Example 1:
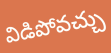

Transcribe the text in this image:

విడిపోవచ్చు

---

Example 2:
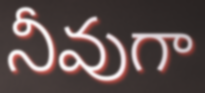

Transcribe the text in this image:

నీవుగా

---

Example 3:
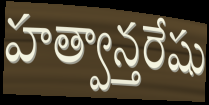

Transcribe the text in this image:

హత్వాన్తరేషు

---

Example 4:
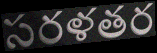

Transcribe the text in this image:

సరళతర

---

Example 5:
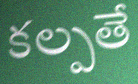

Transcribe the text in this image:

కల్పతే